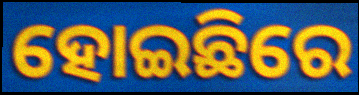
ହୋଇଛିରେ